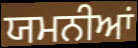
ਯਮਨੀਆਂ